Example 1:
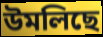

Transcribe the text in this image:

উমলিছে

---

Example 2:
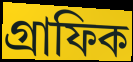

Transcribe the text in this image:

গ্ৰাফিক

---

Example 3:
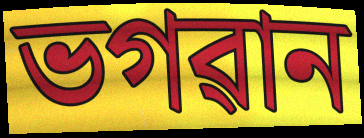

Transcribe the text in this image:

ভগৱান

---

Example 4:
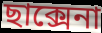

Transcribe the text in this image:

ছাক্সেনা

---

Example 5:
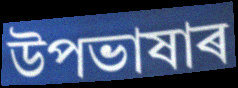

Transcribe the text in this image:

উপভাষাৰ